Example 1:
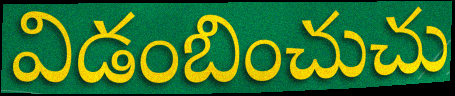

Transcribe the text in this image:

విడంబించుచు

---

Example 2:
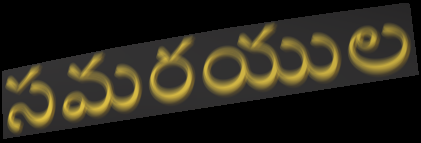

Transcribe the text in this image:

సమరయుల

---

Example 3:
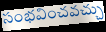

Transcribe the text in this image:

సంభవించవచ్చు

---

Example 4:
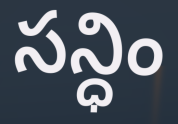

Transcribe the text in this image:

సన్ధిం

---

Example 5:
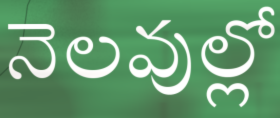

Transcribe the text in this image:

నెలవుల్లో